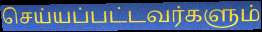
செய்யப்பட்டவர்களும்